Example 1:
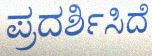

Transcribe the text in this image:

ಪ್ರದರ್ಶಿಸಿದೆ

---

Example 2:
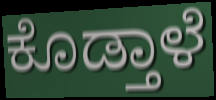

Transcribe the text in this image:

ಕೊಡ್ತಾಳೆ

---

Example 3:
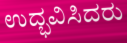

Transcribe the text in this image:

ಉದ್ಭವಿಸಿದರು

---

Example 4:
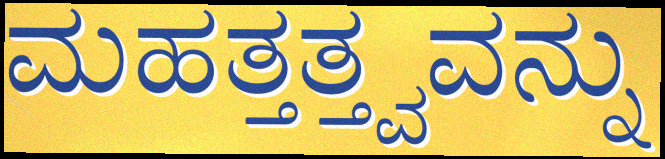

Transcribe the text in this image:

ಮಹತ್ತತ್ತ್ವವನ್ನು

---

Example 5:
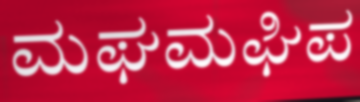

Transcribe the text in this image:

ಮಘಮಘಿಪ